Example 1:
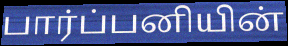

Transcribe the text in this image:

பார்ப்பனியின்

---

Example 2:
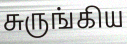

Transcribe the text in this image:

சுருங்கிய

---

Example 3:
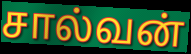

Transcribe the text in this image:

சால்வன்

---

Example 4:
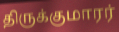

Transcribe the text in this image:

திருக்குமாரர்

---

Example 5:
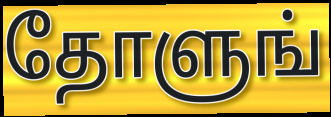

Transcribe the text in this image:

தோளுங்